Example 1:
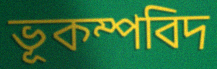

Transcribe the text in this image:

ভূকম্পবিদ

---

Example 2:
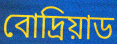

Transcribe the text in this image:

বোদ্রিয়াড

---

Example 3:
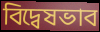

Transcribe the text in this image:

বিদ্বেষভাব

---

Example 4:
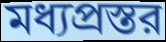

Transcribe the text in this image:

মধ্যপ্রস্তর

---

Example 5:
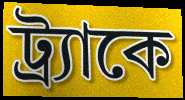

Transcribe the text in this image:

ট্র্যাকে